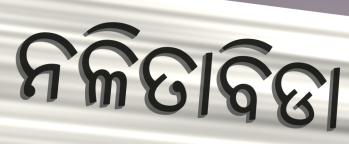
ନଳିତାବିଡା